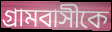
গ্রামবাসীকে